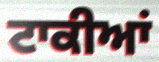
ਟਾਕੀਆਂ